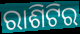
ରାଶିଟିର